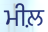
ਮੀਲ਼